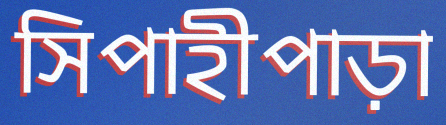
সিপাহীপাড়া